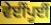
ਵੇਈਂਪੂਈਂ